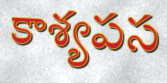
కాశ్యపస